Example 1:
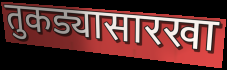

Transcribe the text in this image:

तुकड्यासारखा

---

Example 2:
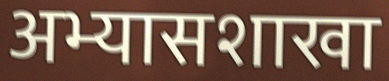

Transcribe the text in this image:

अभ्यासशाखा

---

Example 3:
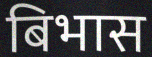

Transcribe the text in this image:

बिभास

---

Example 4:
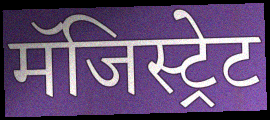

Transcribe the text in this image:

मॅजिस्ट्रेट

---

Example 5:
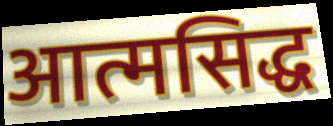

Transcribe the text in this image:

आत्मसिद्ध